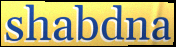
shabdna